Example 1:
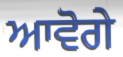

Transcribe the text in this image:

ਆਵੋਗੇ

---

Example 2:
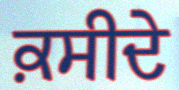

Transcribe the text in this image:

ਕ਼ਸੀਦੇ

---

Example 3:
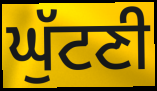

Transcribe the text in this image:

ਘੁੱਟਣੀ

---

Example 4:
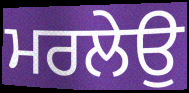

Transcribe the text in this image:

ਮਰਲੇਉ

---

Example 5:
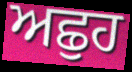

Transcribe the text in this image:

ਅਛੁਹ